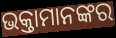
ଭକ୍ତାମାନଙ୍କର